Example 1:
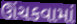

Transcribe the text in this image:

ઊંચકવામાં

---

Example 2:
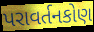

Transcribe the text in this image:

પરાવર્તનકોણ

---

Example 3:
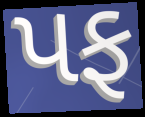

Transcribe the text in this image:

પફ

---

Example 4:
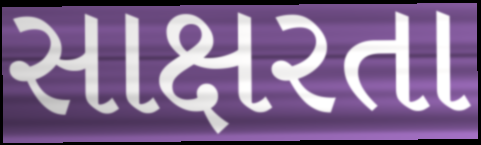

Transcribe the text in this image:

સાક્ષરતા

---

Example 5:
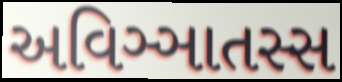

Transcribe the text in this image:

અવિઞ્ઞાતસ્સ